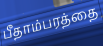
பீதாம்பரத்தை